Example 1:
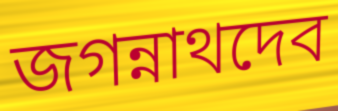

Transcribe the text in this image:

জগন্নাথদেব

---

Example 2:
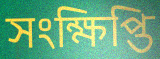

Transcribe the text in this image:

সংক্ষিপ্তি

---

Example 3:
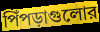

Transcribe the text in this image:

পিঁপড়াগুলোর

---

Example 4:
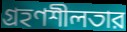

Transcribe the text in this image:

গ্রহণশীলতার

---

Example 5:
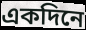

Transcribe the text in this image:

একদিনে